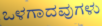
ಒಳಗಾದವುಗಳು